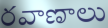
రవాణాలు